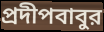
প্রদীপবাবুর